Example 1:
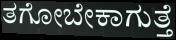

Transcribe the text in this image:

ತಗೋಬೇಕಾಗುತ್ತೆ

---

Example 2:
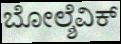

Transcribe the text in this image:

ಬೋಲ್ಶೆವಿಕ್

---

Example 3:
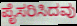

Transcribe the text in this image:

ಪೈಸರಿಸಿದವು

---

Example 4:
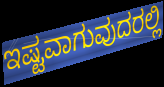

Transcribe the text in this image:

ಇಷ್ಟವಾಗುವುದರಲ್ಲಿ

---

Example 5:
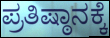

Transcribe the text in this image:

ಪ್ರತಿಷ್ಠಾನಕ್ಕೆ